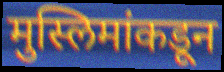
मुस्लिमांकडून